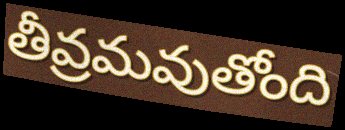
తీవ్రమవుతోంది